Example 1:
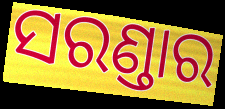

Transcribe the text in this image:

ସରଣ୍ଡାର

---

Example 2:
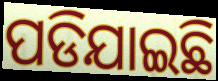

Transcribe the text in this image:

ପଡିଯାଇଛି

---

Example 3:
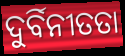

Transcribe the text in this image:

ଦୁର୍ବିନୀତତା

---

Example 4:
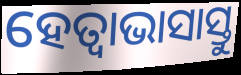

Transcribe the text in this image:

ହେତ୍ଵାଭାସାସ୍ତୁ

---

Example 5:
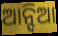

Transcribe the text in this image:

ଆନ୍ଦିଆ